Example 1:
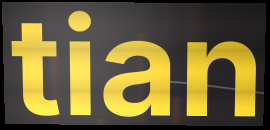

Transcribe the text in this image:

tian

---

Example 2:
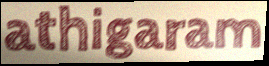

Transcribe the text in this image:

athigaram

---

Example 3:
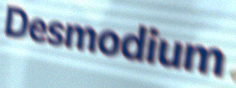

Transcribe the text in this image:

Desmodium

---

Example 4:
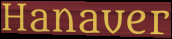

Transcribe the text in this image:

Hanauer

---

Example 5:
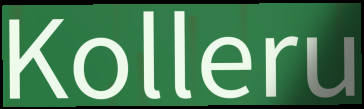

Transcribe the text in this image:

Kolleru